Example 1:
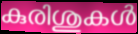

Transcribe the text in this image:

കുരിശുകൾ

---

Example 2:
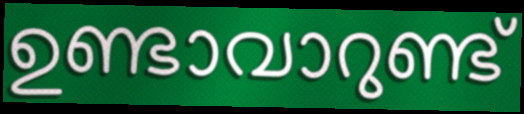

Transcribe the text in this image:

ഉണ്ടാവാറുണ്ട്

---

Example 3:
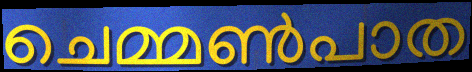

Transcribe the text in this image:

ചെമ്മൺപാത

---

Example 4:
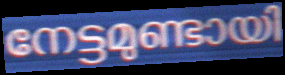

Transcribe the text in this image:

നേട്ടമുണ്ടായി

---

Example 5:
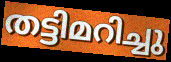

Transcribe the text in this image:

തട്ടിമറിച്ചു